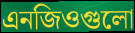
এনজিওগুলো